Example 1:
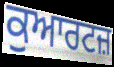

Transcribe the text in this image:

ਕੁਆਰਟਜ਼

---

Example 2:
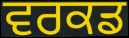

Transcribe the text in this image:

ਵਰਕਡ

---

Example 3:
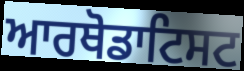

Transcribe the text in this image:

ਆਰਥੋਡਾਟਿਸਟ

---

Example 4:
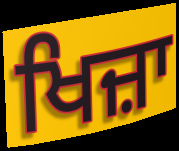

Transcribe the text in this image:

ਖਿਜ਼ਾ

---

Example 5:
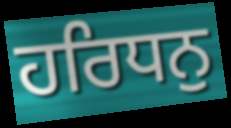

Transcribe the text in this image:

ਹਰਿਧਨੁ